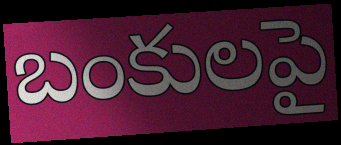
బంకులపై